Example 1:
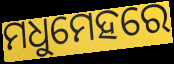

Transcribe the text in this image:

ମଧୁମେହରେ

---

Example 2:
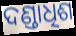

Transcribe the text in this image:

ଦଣ୍ଡାଧିଶ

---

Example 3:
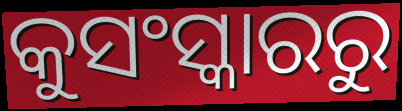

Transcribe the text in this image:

କୁସଂସ୍କାରରୁ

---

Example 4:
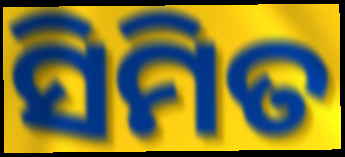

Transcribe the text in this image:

ସିମିତ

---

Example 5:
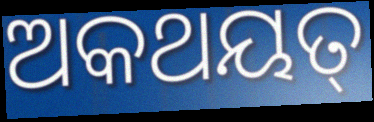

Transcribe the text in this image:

ଅକଥୟତ୍